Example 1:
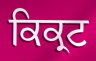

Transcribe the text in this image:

ਕਿਕ੍ਰਟ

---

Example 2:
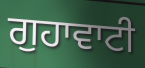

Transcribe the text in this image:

ਗੁਹਾਵਾਟੀ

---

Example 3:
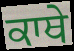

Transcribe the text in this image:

ਕਾਥੇ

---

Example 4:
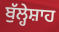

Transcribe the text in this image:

ਬੁੱਲ੍ਹੇਸ਼ਾਹ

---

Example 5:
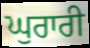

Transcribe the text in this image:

ਘੁਰਾਰੀ